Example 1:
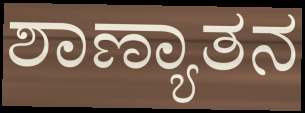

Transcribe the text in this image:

ಶಾಣ್ಯಾತನ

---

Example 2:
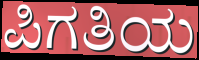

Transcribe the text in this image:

ಪಿಗತಿಯ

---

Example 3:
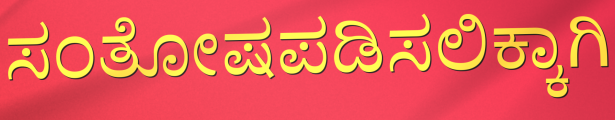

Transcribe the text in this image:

ಸಂತೋಷಪಡಿಸಲಿಕ್ಕಾಗಿ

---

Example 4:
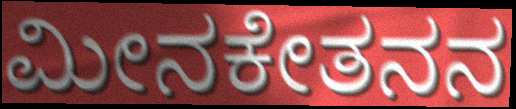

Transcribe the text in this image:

ಮೀನಕೇತನನ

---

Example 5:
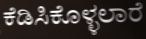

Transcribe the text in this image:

ಕೆಡಿಸಿಕೊಳ್ಳಲಾರೆ